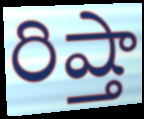
రిష్తా